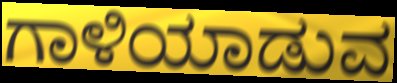
ಗಾಳಿಯಾಡುವ